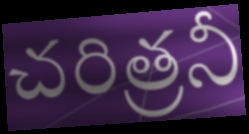
చరిత్రనీ